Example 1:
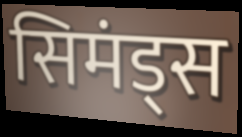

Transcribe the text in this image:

सिमंड्स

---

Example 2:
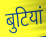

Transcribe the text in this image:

बुटियां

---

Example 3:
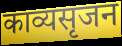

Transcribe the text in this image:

काव्यसृजन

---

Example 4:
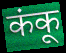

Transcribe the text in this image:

कंकू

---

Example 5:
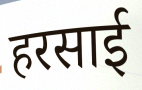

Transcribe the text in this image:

हरसाई